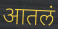
आतलं